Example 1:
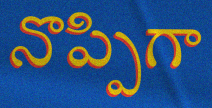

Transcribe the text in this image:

నొప్పిగా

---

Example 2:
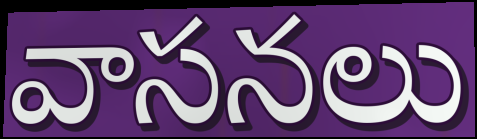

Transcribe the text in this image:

వాసనలు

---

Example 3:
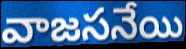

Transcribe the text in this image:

వాజసనేయి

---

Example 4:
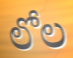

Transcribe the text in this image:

లోల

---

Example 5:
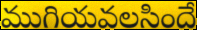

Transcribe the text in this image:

ముగియవలసిందే